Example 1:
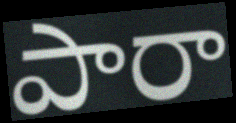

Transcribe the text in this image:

పారా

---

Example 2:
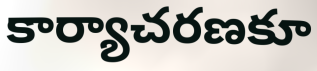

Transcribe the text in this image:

కార్యాచరణకూ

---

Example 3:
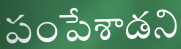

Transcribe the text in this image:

పంపేశాడని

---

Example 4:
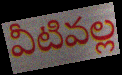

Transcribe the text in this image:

వీటివల్ల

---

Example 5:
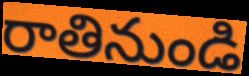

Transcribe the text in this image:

రాతినుండి